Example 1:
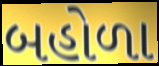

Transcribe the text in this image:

બહોળા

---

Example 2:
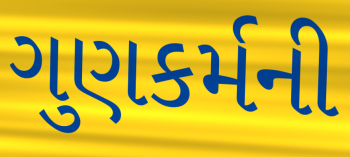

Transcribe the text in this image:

ગુણકર્મની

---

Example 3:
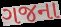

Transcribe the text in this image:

ગજના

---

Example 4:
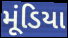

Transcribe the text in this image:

મૂંડિયા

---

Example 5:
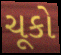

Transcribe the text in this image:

ચૂકો